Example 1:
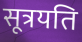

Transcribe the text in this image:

सूत्रयति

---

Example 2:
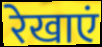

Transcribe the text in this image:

रेखाएं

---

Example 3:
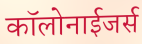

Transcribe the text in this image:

कॉलोनाईजर्स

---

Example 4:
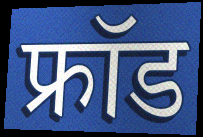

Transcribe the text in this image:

फ्रॉड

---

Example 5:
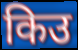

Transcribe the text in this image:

किउ